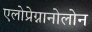
एलोप्रेग्नानोलोन